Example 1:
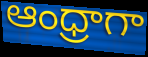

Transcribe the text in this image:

ఆంధ్రాగా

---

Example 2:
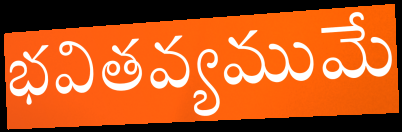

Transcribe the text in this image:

భవితవ్యముమే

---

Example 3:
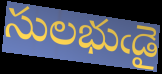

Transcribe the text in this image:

సులభుఁడై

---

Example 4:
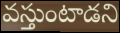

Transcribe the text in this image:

వస్తుంటాడని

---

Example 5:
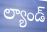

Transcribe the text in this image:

ల్యాండ్